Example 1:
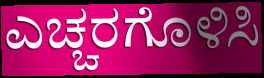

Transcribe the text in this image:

ಎಚ್ಚರಗೊಳಿಸಿ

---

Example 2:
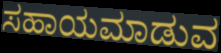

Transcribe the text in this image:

ಸಹಾಯಮಾಡುವ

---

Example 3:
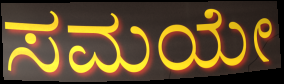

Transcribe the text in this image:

ಸಮಯೇ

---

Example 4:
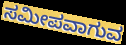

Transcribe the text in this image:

ಸಮೀಪವಾಗುವ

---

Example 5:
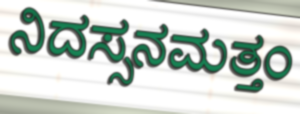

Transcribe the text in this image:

ನಿದಸ್ಸನಮತ್ತಂ